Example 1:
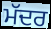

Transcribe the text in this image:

ਮੱਦਰ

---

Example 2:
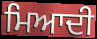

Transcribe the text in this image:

ਮਿਆਦੀ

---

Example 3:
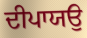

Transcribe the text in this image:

ਦੀਪਾਯਉ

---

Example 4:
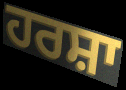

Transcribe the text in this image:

ਹਰਸ਼ਾ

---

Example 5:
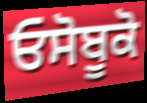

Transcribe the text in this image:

ਓਸੋਬੂਕੋ